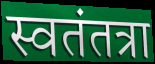
स्वतंतत्रा